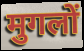
मुगलों